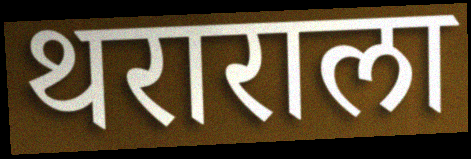
थराराला